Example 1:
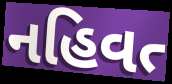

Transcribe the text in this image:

નહિવત્‍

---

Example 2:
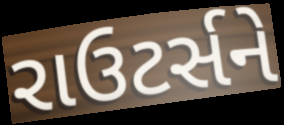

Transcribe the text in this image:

રાઉટર્સને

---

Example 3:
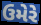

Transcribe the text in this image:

ઉમેરે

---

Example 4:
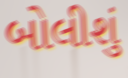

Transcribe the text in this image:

બોલીશું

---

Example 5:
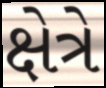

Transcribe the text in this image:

ક્ષેત્રે